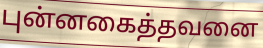
புன்னகைத்தவனை